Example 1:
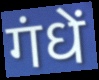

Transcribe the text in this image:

गंधें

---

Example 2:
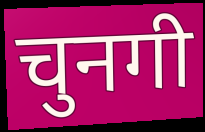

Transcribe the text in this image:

चुनगी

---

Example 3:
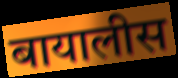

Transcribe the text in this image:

बायालीस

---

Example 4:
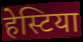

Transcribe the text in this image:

हेस्टिया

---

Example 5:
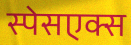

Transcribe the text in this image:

स्पेसएक्स